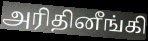
அரிதினீங்கி